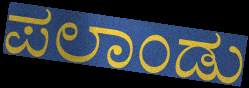
ಪಲಾಂಡು